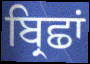
ਬ੍ਰਿਛਾਂ